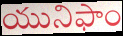
యునిఫాం